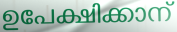
ഉപേക്ഷിക്കാന്